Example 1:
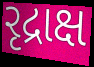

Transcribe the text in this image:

રૃદ્રાક્ષ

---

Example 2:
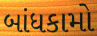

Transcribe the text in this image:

બાંધકામો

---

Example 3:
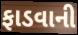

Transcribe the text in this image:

ફાડવાની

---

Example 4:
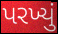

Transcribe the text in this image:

પરખ્યું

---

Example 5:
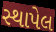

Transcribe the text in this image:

સ્થાપેલ